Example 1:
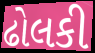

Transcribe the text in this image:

ઢોલકી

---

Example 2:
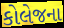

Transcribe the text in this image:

કોલેજના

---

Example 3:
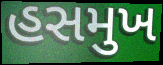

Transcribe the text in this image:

હસમુખ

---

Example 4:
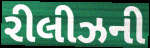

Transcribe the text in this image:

રીલીઝની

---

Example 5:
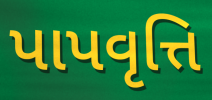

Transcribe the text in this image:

પાપવૃત્તિ